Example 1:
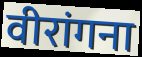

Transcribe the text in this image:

वीरांगना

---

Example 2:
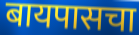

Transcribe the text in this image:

बायपासचा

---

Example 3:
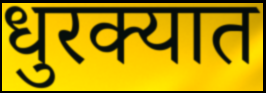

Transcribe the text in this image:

धुरक्यात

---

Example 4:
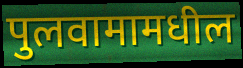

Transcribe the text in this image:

पुलवामामधील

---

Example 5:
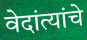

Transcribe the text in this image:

वेदांत्यांचे